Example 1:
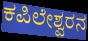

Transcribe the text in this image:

ಕಪಿಲೇಶ್ವರನ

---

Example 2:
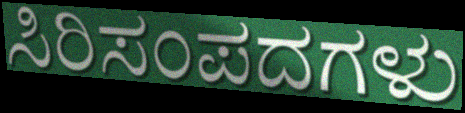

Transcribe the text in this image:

ಸಿರಿಸಂಪದಗಳು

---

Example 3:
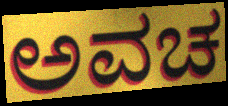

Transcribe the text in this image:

ಅವಚ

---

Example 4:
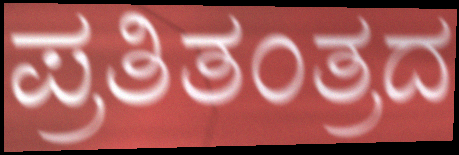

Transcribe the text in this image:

ಪ್ರತಿತಂತ್ರದ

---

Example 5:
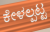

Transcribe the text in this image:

ಕೇಳಲ್ಪಟ್ಟ